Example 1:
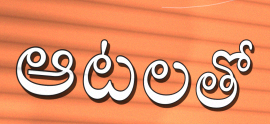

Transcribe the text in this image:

ఆటలతో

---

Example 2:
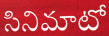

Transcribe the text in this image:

సినిమాటో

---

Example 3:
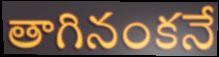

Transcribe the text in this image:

తాగినంకనే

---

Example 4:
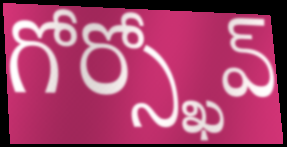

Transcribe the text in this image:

గోర్స్ఖోవ్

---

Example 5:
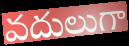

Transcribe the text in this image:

వదులుగా